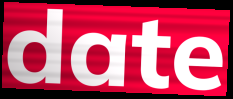
date